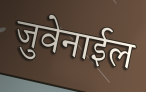
जुवेनाईल